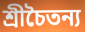
শ্রীচৈতন্য